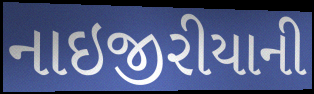
નાઇજીરીયાની